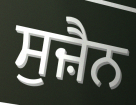
ਸੁਜ਼ੈਨ